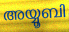
അയ്യൂബി